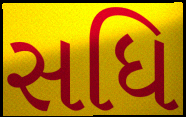
સધિ